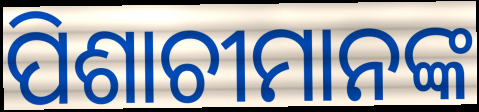
ପିଶାଚୀମାନଙ୍କ